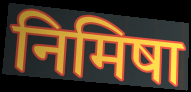
निमिषा